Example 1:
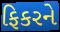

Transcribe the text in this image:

ફિકરને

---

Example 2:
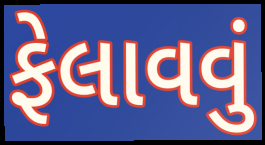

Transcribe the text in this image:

ફેલાવવું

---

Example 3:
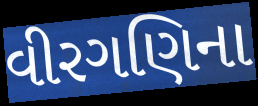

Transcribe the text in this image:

વીરગણિના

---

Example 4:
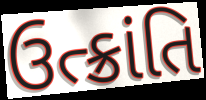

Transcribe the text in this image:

ઉત્ક્રાંતિ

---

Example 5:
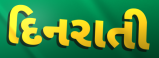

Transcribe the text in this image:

દિનરાતી